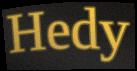
Hedy